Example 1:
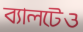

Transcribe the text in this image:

ব্যালটেও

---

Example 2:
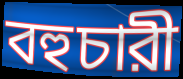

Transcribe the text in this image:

বহুচারী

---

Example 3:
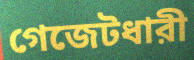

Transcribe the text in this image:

গেজেটধারী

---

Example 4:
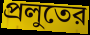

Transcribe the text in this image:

প্রলুতের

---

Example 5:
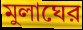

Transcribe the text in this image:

মুলাঘের